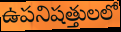
ఉపనిషత్తులలో